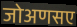
जोअणसए